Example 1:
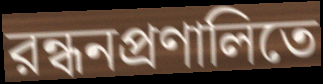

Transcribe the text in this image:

রন্ধনপ্রণালিতে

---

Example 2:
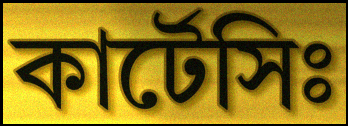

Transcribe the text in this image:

কার্টেসিঃ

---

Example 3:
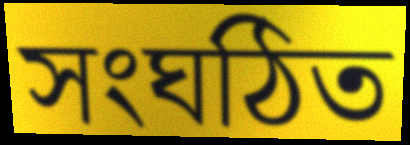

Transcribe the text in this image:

সংঘঠিত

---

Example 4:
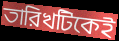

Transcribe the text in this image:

তারিখটিকেই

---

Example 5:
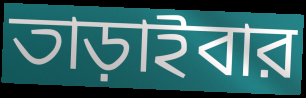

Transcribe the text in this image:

তাড়াইবার